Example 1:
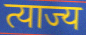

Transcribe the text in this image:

त्याज्य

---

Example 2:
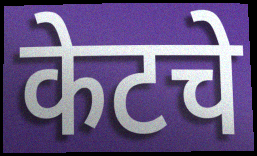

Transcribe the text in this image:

केटचे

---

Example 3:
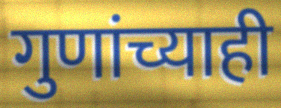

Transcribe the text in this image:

गुणांच्याही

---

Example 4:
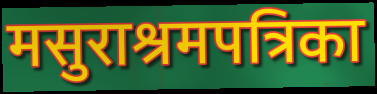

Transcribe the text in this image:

मसुराश्रमपत्रिका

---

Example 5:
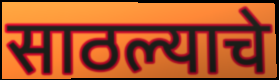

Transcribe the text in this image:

साठल्याचे